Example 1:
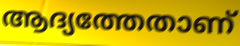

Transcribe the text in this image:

ആദ്യത്തേതാണ്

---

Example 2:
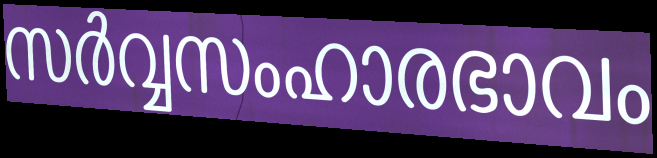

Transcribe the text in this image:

സർവ്വസംഹാരഭാവം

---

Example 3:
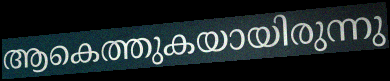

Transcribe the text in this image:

ആകെത്തുകയായിരുന്നു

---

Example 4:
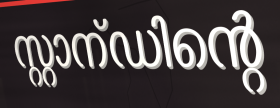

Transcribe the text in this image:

സ്റ്റാന്ഡിന്റെ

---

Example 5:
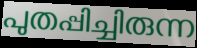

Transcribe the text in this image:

പുതപ്പിച്ചിരുന്ന